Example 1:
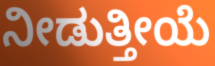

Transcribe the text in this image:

ನೀಡುತ್ತೀಯೆ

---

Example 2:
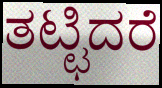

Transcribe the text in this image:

ತಟ್ಟಿದರೆ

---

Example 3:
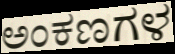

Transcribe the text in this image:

ಅಂಕಣಗಳ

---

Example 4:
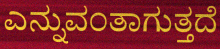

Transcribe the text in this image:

ಎನ್ನುವಂತಾಗುತ್ತದೆ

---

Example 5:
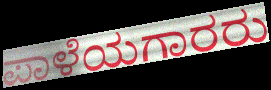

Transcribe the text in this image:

ಪಾಳೆಯಗಾರರು